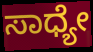
ಸಾಧ್ಯೇ